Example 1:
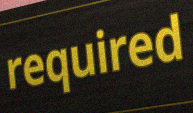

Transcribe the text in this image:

required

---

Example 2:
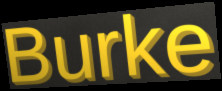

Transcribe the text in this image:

Burke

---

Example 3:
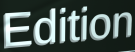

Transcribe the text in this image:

Edition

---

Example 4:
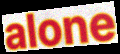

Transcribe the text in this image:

alone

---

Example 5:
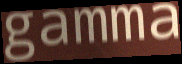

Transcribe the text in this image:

gamma